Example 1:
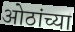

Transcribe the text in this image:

ओठांच्या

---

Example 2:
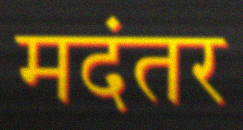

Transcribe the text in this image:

मदंतर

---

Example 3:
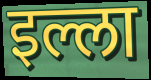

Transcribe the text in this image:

इल्ला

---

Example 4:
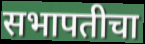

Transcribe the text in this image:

सभापतीचा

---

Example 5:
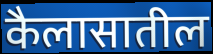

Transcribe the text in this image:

कैलासातील